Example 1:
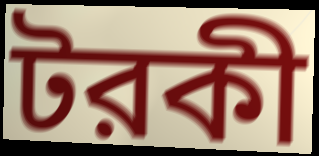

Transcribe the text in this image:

টরকী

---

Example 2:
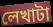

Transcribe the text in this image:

লেখাটা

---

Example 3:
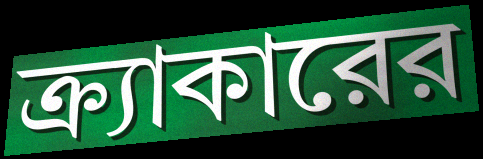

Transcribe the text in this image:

ক্র্যাকারের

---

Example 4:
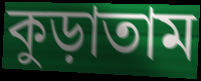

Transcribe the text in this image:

কুড়াতাম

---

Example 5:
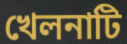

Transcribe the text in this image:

খেলনাটি